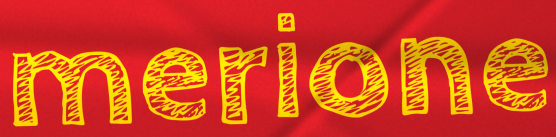
merione